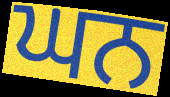
ਘਨ